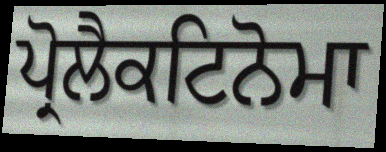
ਪ੍ਰੋਲੈਕਟਿਨੋਮਾ